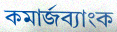
কমার্জব্যাংক